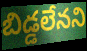
బిడ్డలేనని